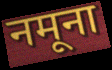
नमूना